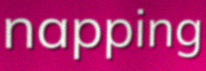
napping